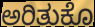
ಅರಿತುಕೊ